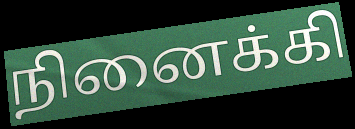
நினைக்கி